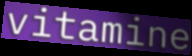
vitamine